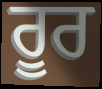
ਰੂਰ